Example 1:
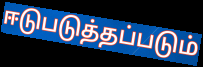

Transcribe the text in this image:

ஈடுபடுத்தப்படும்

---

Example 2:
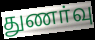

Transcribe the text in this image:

துணர்வு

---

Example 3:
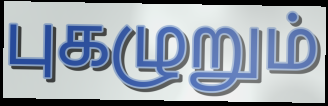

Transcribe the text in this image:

புகழுறும்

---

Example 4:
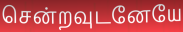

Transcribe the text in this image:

சென்றவுடனேயே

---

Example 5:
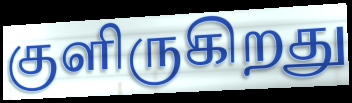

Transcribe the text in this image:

குளிருகிறது